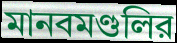
মানবমণ্ডলির